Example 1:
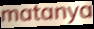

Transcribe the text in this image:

matanya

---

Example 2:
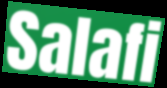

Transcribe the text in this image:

Salafi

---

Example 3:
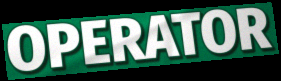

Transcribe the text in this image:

OPERATOR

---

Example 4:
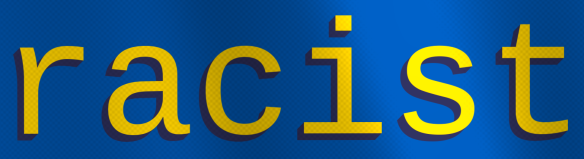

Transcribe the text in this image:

racist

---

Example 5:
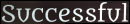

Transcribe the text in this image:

Successful